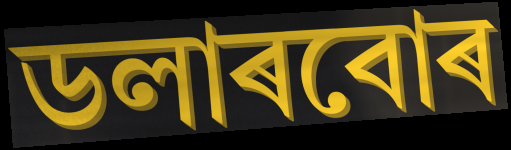
ডলাৰবোৰ